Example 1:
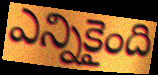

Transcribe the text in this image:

ఎన్నికైంది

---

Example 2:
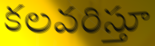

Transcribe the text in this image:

కలవరిస్తూ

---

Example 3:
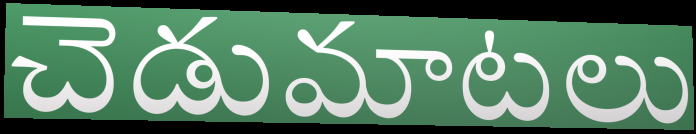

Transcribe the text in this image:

చెడుమాటలు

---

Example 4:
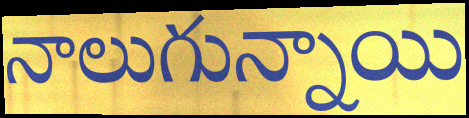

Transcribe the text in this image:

నాలుగున్నాయి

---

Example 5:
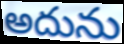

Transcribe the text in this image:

అదును